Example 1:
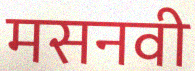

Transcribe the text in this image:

मसनवी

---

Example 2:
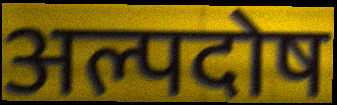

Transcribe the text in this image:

अल्पदोष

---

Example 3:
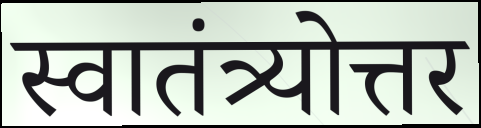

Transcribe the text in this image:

स्वातंत्र्योत्तर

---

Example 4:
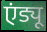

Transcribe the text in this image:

एंड्यू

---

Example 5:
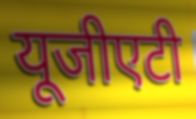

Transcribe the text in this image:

यूजीएटी